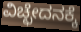
ವಿಚ್ಛೇದನಕ್ಕೆ